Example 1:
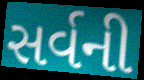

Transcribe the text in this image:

સર્વની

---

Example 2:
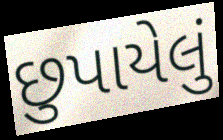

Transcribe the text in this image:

છુપાયેલું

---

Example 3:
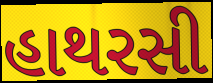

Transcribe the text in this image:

હાથરસી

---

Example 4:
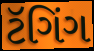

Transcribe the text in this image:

ટૅગિંગ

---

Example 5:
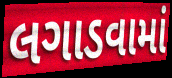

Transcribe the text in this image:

લગાડવામાં